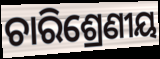
ଚାରିଶ୍ରେଣୀୟ